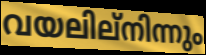
വയലില്നിന്നും